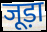
जूड़ा